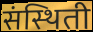
संस्थिती